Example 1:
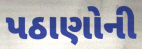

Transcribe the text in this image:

પઠાણોની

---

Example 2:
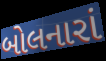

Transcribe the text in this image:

બોલનારાં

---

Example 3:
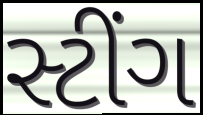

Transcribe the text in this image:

સ્ટીંગ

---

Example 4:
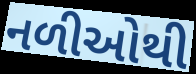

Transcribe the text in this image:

નળીઓથી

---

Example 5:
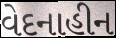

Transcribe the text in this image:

વેદનાહીન